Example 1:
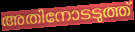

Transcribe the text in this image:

അതിനോടടുത്ത്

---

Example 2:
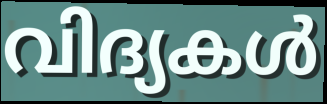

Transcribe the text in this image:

വിദ്യകൾ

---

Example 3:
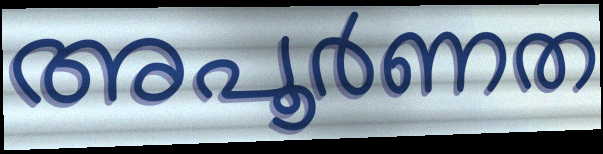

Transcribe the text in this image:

അപൂർണത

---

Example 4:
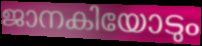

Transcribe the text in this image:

ജാനകിയോടും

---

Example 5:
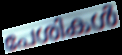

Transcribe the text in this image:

പേശികൾ